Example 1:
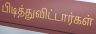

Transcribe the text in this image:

பிடித்துவிட்டார்கள்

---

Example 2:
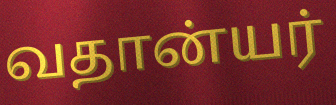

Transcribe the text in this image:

வதான்யர்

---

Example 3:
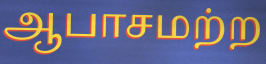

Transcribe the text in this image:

ஆபாசமற்ற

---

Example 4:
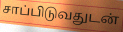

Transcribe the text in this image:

சாப்பிடுவதுடன்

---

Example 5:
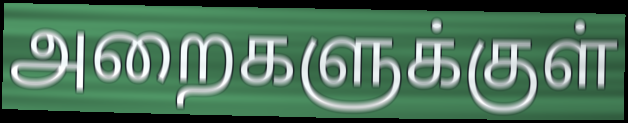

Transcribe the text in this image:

அறைகளுக்குள்